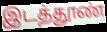
இடத்தூண்